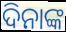
ଦିନାଙ୍କ